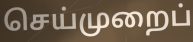
செய்முறைப்